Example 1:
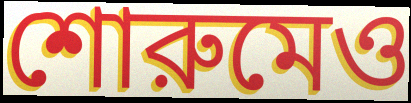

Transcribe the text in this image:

শোরুমেও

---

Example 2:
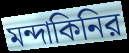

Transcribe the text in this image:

মন্দাকিনির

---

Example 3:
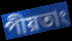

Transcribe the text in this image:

পীয়তাং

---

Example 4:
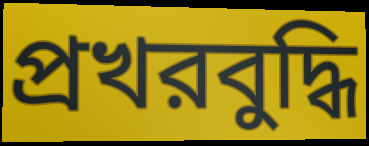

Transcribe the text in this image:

প্রখরবুদ্ধি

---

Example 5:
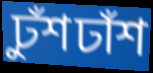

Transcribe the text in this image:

ঢুঁশঢাঁশ